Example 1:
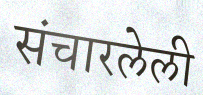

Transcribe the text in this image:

संचारलेली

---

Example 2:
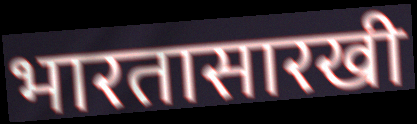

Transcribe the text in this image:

भारतासारखी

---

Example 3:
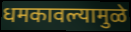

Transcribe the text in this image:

धमकावल्यामुळे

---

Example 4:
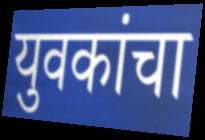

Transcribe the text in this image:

युवकांचा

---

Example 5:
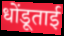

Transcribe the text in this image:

धोंडूताई